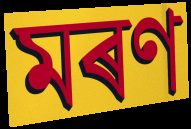
মৰণ